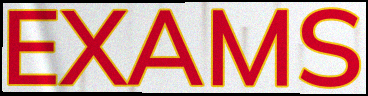
EXAMS